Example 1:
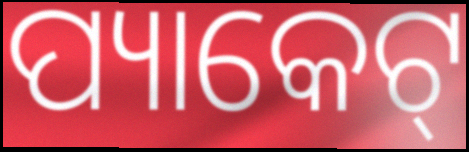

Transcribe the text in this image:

ପ୍ୟାକେଟ୍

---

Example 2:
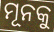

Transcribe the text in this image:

ମୂନକୁ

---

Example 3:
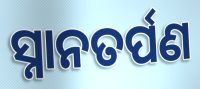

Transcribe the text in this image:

ସ୍ନାନତର୍ପଣ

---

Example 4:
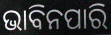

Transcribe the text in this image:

ଭାବିନପାରି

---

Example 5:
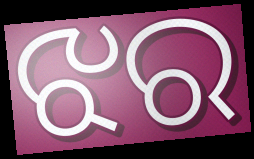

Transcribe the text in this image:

ଝର